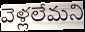
వెళ్లలేమని